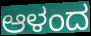
ಆಳಂದ